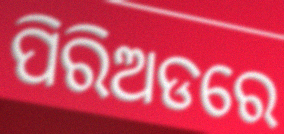
ପିରିଅଡରେ